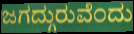
ಜಗದ್ಗುರುವೆಂದು